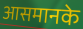
आसमानके